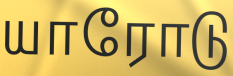
யாரோடு